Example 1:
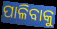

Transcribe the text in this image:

ପାଳିବାକୁ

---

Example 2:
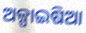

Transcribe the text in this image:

ଅଳ୍ପାଇଷିଆ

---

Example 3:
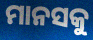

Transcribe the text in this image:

ମାନସକୁ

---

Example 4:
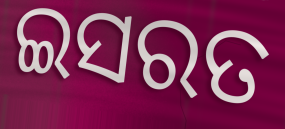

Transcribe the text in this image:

ଇସରତ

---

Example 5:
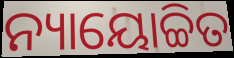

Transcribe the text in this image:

ନ୍ୟାୟୋଚ୍ଚିତ